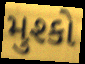
મુશ્કો